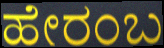
ಹೇರಂಬ